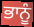
ਭਾਨੂੰ